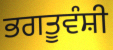
ਭਗਤੂਵੰਸ਼ੀ